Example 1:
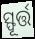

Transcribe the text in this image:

ସ୍ଫୂର୍ତ୍ତ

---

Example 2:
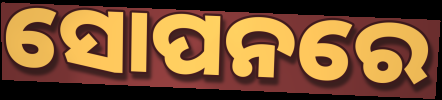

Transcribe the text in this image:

ସୋପନରେ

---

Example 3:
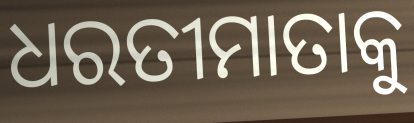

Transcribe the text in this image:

ଧରତୀମାତାକୁ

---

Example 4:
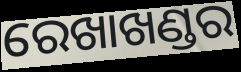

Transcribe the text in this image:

ରେଖାଖଣ୍ଡର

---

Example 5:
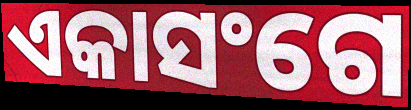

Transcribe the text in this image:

ଏକାସଂଗେ